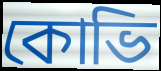
কোভি